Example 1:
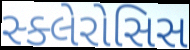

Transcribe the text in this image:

સ્ક્લેરોસિસ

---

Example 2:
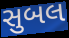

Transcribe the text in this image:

સુબલ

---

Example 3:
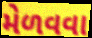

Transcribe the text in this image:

મેળવવા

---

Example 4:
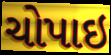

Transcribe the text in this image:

ચોપાઇ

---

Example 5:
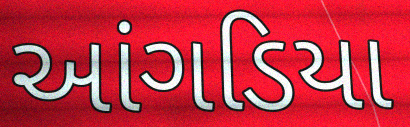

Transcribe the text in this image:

આંગડિયા